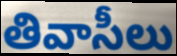
తివాసీలు